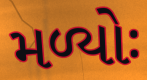
મળ્યોઃ